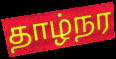
தாழ்நர